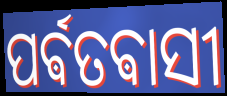
ପର୍ଵତଵାସୀ